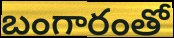
బంగారంతో